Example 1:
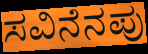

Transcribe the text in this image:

ಸವಿನೆನಪು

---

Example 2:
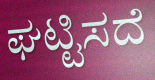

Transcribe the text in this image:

ಘಟ್ಟಿಸದೆ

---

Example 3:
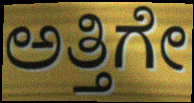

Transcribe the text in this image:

ಅತ್ತಿಗೇ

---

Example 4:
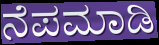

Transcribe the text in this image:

ನೆಪಮಾಡಿ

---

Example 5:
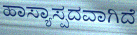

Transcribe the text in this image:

ಹಾಸ್ಯಾಸ್ಪದವಾಗಿದೆ